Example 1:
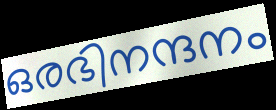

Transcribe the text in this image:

ഒരഭിനന്ദനം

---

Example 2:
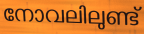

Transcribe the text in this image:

നോവലിലുണ്ട്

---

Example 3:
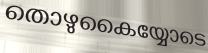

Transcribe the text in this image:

തൊഴുകൈയ്യോടെ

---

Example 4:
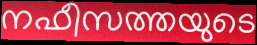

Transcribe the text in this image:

നഫീസത്തയുടെ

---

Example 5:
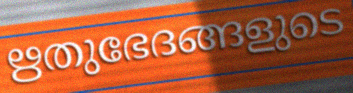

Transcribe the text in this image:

ഋതുഭേദങ്ങളുടെ